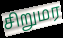
சிறுமர